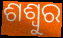
ଶଶ୍ୱୁର